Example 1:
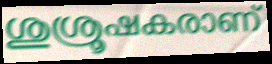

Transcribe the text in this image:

ശുശ്രൂഷകരാണ്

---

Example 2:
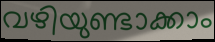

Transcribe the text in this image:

വഴിയുണ്ടാക്കാം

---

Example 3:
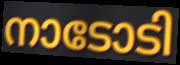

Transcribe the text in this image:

നാടോടി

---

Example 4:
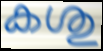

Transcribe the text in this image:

കശു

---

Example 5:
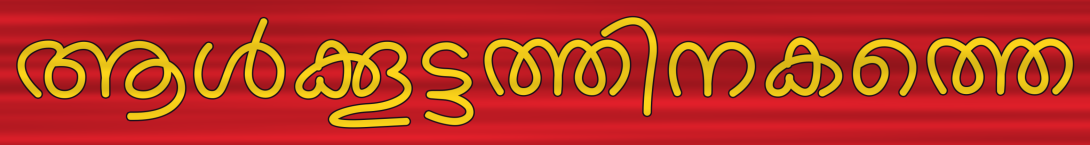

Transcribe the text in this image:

ആൾക്കൂട്ടത്തിനകത്തെ